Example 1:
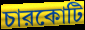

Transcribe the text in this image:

চারকোটি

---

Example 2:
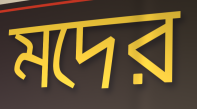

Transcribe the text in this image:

মদের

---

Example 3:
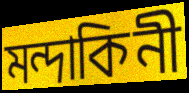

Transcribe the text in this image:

মন্দাকিনী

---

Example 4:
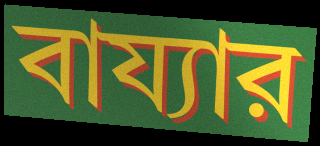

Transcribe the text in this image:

বায্যার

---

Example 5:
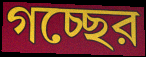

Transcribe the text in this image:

গচ্ছের